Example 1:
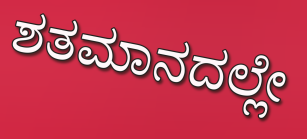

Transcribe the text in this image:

ಶತಮಾನದಲ್ಲೇ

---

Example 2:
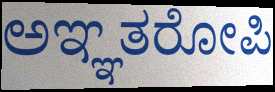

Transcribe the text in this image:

ಅಞ್ಞತರೋಪಿ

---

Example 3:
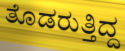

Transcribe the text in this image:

ತೊಡರುತ್ತಿದ್ದ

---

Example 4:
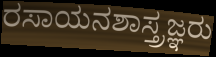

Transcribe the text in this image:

ರಸಾಯನಶಾಸ್ತ್ರಜ್ಞರು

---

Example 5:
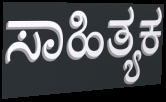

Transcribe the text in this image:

ಸಾಹಿತ್ಯಕ